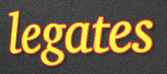
legates